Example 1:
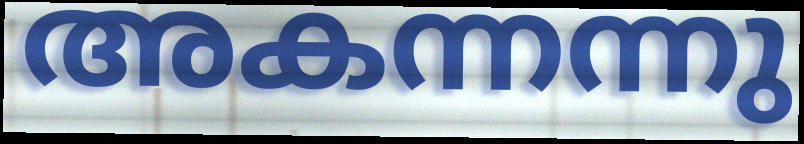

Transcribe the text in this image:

അകന്നന്നു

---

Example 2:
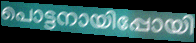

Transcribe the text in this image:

പൊട്ടനായിപ്പോയി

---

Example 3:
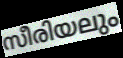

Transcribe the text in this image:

സീരിയലും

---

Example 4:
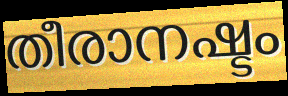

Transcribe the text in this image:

തീരാനഷ്ടം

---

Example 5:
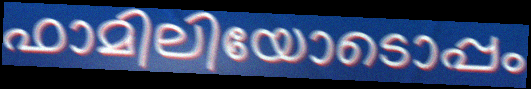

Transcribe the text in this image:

ഫാമിലിയോടൊപ്പം